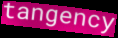
tangency